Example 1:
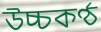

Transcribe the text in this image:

উচ্চকণ্ঠ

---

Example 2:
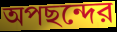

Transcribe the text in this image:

অপছন্দের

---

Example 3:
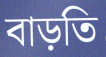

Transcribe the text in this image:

বাড়তি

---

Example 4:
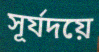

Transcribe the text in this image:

সূর্যদয়ে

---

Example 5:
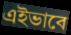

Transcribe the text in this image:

এইভাবে